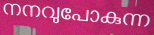
നനവുപോകുന്ന